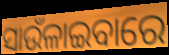
ସାଉଁଳାଇବାରେ